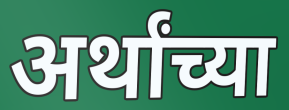
अर्थांच्या